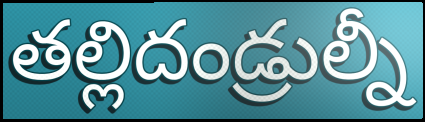
తల్లిదండ్రుల్నీ